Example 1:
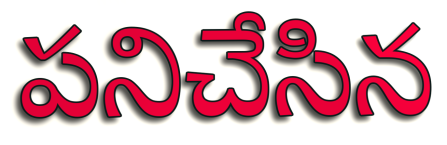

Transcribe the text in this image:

పనిచేసిన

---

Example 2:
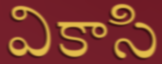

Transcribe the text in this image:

వికాసి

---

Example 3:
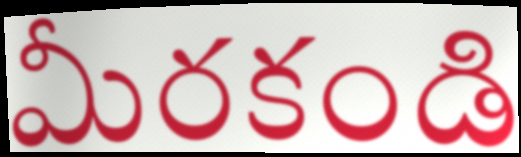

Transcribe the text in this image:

మీరకండి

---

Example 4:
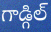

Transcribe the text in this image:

గాడ్గిల్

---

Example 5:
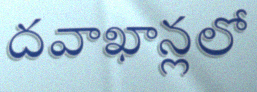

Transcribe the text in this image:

దవాఖాన్లలో